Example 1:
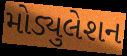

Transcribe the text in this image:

મોડ્યુલેશન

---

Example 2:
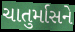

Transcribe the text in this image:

ચાતુર્માસને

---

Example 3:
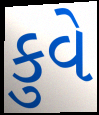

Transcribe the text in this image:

કુવે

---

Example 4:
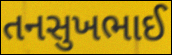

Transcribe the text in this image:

તનસુખભાઈ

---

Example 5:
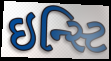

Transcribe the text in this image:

ઇન્સ્ટિ